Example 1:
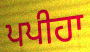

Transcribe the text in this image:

ਪਪੀਹਾ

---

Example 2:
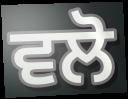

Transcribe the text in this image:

ਵਲੋ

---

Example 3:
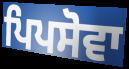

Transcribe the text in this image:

ਪਿਪਸੋਵਾ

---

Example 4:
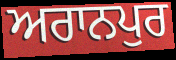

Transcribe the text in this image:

ਅਰਾਨਪੁਰ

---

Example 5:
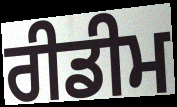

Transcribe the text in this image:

ਰੀਡੀਮ